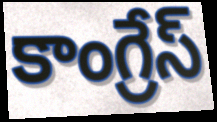
కాంగ్రేస్